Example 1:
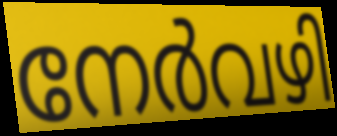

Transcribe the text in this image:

നേർവഴി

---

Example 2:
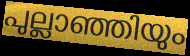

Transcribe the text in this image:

പുല്ലാഞ്ഞിയും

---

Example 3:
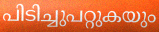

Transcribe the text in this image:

പിടിച്ചുപറ്റുകയും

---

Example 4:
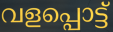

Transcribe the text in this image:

വളപ്പൊട്ട്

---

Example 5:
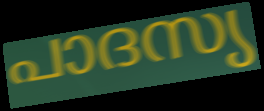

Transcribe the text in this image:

പാദസ്യ